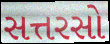
સત્તરસો